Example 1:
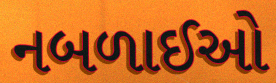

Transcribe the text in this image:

નબળાઈઓ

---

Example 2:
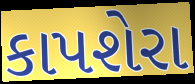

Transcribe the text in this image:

કાપશેરા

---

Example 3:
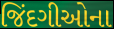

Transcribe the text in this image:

જિંદગીઓના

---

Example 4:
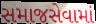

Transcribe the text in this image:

સમાજસેવામાં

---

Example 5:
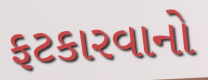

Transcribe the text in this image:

ફટકારવાનો